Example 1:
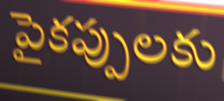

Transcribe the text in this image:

పైకప్పులకు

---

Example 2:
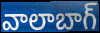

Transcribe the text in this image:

వాలాబాగ్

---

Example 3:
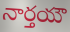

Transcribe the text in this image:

నార్తయౌ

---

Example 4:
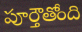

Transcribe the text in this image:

పూర్తౌతోంది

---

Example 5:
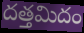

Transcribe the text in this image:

దత్తమిదం